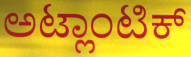
ಅಟ್ಲಾಂಟಿಕ್